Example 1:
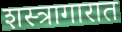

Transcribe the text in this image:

शस्त्रागारात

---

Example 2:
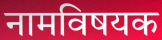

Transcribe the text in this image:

नामविषयक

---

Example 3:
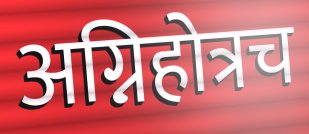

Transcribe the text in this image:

अग्निहोत्रच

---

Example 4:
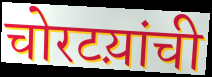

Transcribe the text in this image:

चोरटय़ांची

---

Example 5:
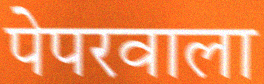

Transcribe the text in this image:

पेपरवाला